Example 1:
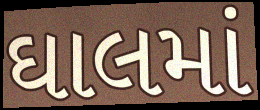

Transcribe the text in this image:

ઘાલમાં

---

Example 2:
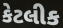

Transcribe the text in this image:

કેટલીક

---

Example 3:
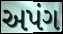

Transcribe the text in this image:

અપંગ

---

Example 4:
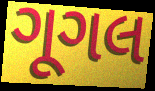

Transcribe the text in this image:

ગૂગલ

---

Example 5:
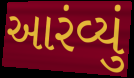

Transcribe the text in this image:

આરંવ્યું